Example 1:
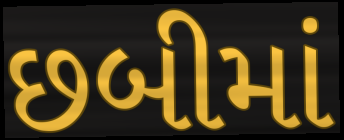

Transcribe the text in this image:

છબીમાં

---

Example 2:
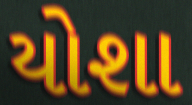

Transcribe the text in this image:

યોશા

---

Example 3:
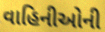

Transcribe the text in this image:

વાહિનીઓની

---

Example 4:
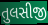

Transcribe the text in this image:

તુલસીજી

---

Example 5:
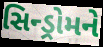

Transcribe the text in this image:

સિન્ડ્રોમને